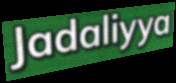
Jadaliyya